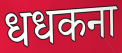
धधकना